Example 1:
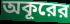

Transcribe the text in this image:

অকূরের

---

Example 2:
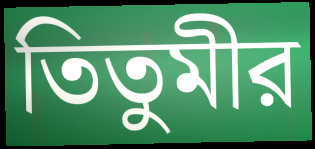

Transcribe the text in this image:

তিতুমীর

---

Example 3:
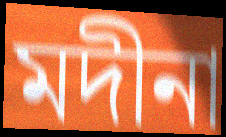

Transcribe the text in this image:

মদীনা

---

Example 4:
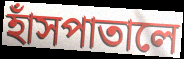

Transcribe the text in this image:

হাঁসপাতালে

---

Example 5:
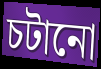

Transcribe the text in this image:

চটানো